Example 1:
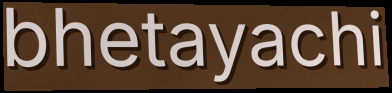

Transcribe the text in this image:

bhetayachi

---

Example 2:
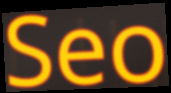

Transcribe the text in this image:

Seo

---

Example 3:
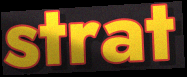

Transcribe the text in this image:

strat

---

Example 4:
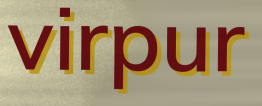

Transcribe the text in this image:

virpur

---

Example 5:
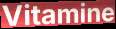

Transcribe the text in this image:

Vitamine